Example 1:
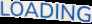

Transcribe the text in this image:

LOADING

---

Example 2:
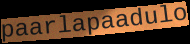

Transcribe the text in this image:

paarlapaadulo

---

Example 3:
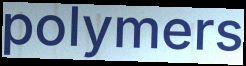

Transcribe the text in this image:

polymers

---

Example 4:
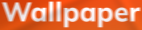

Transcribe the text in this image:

Wallpaper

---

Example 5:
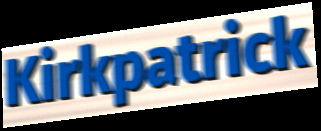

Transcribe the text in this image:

Kirkpatrick